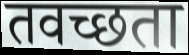
तवच्छता